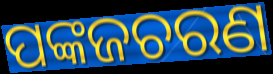
ପଙ୍କଜଚରଣ